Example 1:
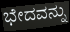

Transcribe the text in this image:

ಭೇದವನ್ನು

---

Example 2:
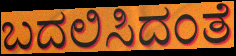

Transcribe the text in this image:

ಬದಲಿಸಿದಂತೆ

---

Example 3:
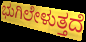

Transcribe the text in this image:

ಭುಗಿಲೇಳುತ್ತದೆ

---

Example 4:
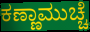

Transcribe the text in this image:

ಕಣ್ಣಾಮುಚ್ಚೆ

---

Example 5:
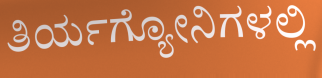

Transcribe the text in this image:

ತಿರ್ಯಗ್ಯೋನಿಗಳಲ್ಲಿ